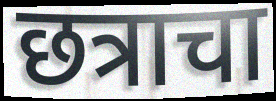
छत्राचा